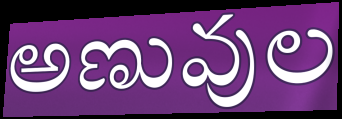
అణువుల